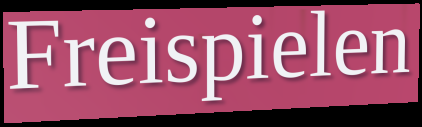
Freispielen